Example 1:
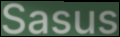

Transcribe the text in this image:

Sasus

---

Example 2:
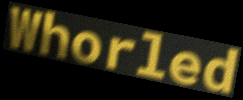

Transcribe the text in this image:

Whorled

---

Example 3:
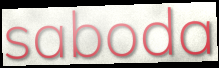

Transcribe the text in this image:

saboda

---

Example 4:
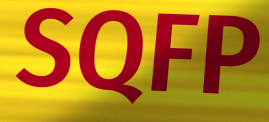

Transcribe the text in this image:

SQFP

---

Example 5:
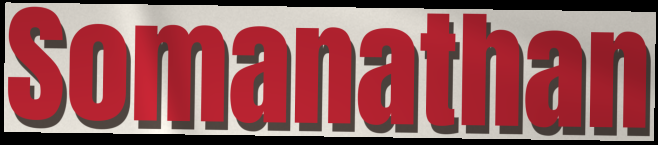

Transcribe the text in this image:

Somanathan